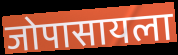
जोपासायला